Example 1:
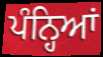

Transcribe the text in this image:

ਪੰਨ੍ਹਿਆਂ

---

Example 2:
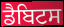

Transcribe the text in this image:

ਡੈਬਿਟਸ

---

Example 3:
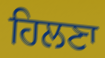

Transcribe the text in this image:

ਹਿਲਣਾ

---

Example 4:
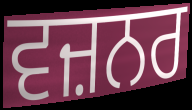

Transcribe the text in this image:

ਵਜ਼ਨਰ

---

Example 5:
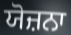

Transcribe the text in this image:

ਯੋਜ਼ਨਾ